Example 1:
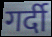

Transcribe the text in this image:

गर्दी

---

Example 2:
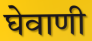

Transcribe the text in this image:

घेवाणी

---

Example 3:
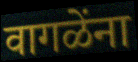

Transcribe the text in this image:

वागळेंना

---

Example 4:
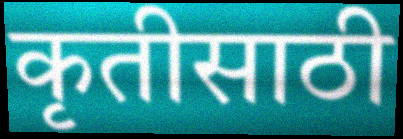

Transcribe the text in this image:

कृतीसाठी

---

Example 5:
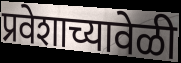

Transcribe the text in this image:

प्रवेशाच्यावेळी